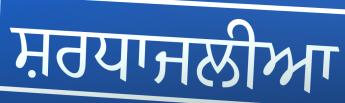
ਸ਼ਰਧਾਜਲੀਆ